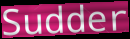
Sudder